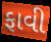
ફાવી